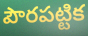
పౌరపట్టిక